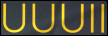
UUUII